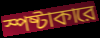
স্পষ্টাকারে